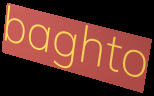
baghto